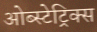
ओब्स्टेट्रिक्स